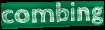
combing